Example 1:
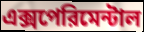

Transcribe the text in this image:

এক্সপেরিমেন্টাল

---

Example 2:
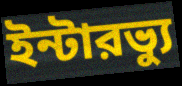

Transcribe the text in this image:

ইন্টারভ্যু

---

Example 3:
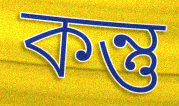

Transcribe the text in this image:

কন্তু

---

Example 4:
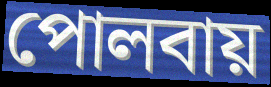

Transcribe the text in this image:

পোলবায়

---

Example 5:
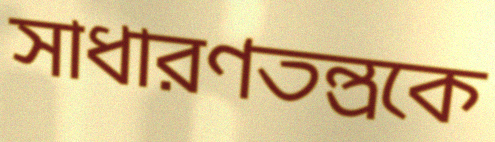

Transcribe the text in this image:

সাধারণতন্ত্রকে